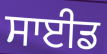
ਸਾਈਡ